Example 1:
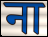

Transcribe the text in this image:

ना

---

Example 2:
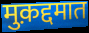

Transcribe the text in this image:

मुक़द्दमात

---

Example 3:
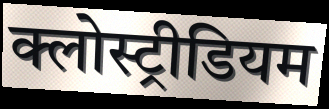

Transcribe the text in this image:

क्लोस्ट्रीडियम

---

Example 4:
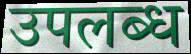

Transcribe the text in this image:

उपलब्ध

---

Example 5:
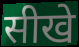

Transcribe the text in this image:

सीखे